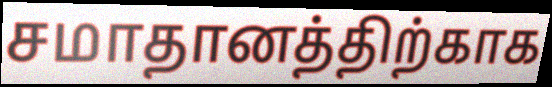
சமாதானத்திற்காக